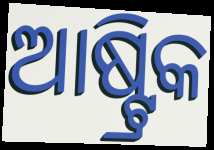
ଆଷ୍ଟ୍ରିକ